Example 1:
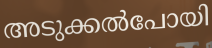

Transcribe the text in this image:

അടുക്കൽപോയി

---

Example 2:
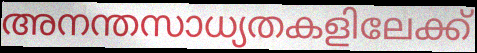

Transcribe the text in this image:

അനന്തസാധ്യതകളിലേക്ക്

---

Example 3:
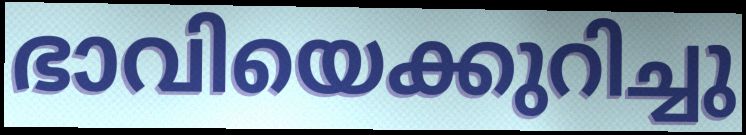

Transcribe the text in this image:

ഭാവിയെക്കുറിച്ചു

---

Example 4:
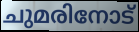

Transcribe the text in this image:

ചുമരിനോട്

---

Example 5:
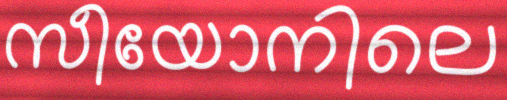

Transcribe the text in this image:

സീയോനിലെ